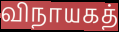
விநாயகத்